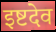
इष्टदेव